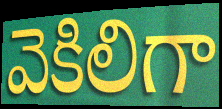
వెకిలిగా